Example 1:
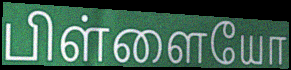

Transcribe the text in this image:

பிள்ளையோ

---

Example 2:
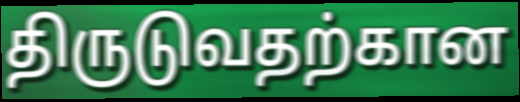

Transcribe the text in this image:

திருடுவதற்கான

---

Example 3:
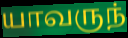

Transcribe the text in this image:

யாவருந்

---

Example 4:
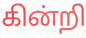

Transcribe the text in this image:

கின்றி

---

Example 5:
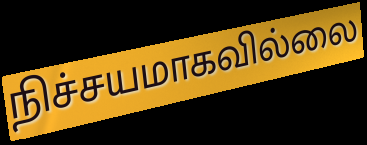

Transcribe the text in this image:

நிச்சயமாகவில்லை